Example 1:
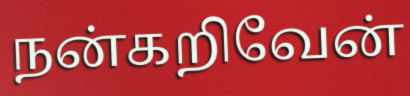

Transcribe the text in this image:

நன்கறிவேன்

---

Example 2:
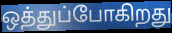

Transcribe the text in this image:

ஒத்துப்போகிறது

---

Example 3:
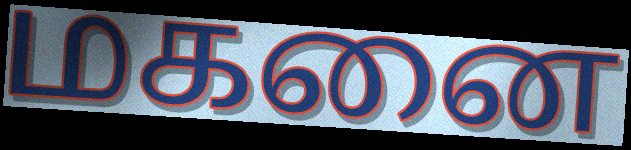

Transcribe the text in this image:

மகனை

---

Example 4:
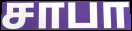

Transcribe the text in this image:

சாபா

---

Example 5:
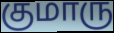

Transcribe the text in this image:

குமாரு